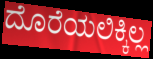
ದೊರೆಯಲಿಕ್ಕಿಲ್ಲ